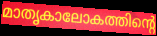
മാതൃകാലോകത്തിന്റെ